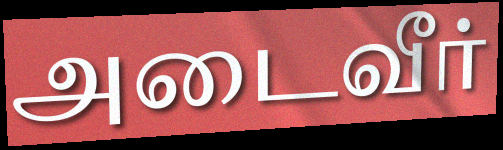
அடைவீர்